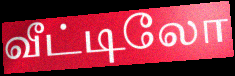
வீட்டிலோ